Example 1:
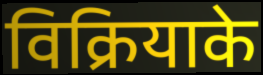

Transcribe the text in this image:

विक्रियाके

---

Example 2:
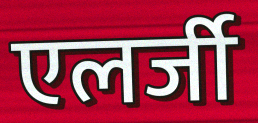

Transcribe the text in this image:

एलर्जी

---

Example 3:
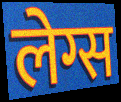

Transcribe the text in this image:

लेग्स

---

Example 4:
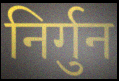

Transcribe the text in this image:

निर्गुन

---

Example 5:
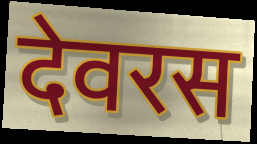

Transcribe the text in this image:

देवरस